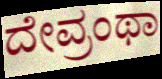
ದೇವ್ರಂಥಾ